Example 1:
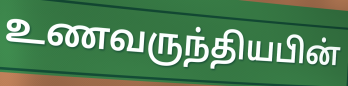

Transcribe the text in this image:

உணவருந்தியபின்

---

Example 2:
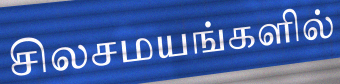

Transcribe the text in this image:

சிலசமயங்களில்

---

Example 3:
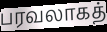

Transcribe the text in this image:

பரவலாகத்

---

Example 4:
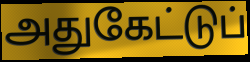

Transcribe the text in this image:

அதுகேட்டுப்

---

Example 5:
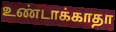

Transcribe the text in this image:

உண்டாக்காதா